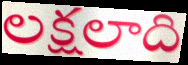
లక్షలాది